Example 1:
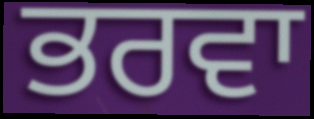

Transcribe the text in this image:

ਭਰਵਾ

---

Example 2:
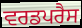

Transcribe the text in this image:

ਵਰਡਪਰੈਸ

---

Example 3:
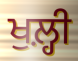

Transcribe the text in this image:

ਖੁਲ਼੍ਹੀ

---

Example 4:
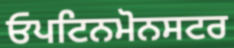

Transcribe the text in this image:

ਓਪਟਿਨਮੋਨਸਟਰ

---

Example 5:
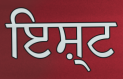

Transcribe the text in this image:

ਇਸ਼੍ਟ